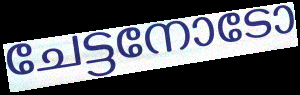
ചേട്ടനോടോ